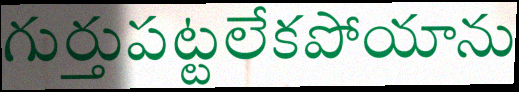
గుర్తుపట్టలేకపోయాను